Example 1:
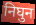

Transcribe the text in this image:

निघुन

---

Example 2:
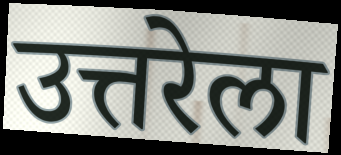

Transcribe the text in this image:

उत्तरेला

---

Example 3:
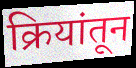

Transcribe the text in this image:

क्रियांतून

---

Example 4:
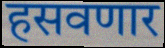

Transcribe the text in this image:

हसवणार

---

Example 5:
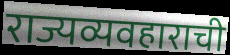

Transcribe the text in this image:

राज्यव्यवहाराची